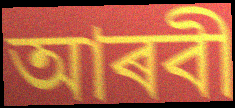
আৰবী